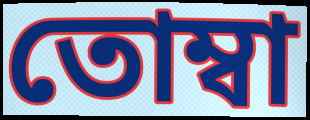
তোম্বা